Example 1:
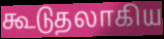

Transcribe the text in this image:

கூடுதலாகிய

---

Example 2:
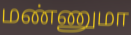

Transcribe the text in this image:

மண்ணுமா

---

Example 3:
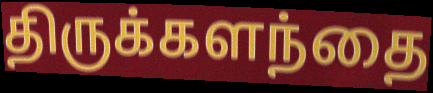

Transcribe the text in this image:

திருக்களந்தை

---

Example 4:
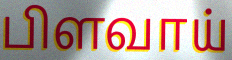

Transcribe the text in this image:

பிளவாய்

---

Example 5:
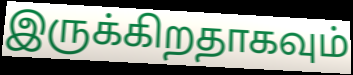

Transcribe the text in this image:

இருக்கிறதாகவும்